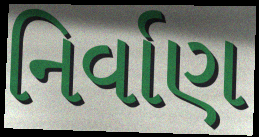
નિર્વાણ